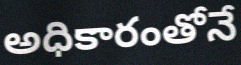
అధికారంతోనే